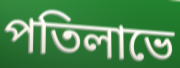
পতিলাভে